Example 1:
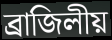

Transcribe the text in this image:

ব্রাজিলীয়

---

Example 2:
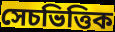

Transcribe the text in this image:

সেচভিত্তিক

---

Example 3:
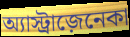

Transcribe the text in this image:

অ্যাস্ট্রাজ়েনেকা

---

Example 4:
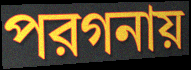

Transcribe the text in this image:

পরগনায়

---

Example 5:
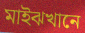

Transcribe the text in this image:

মাইঝখানে